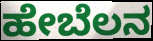
ಹೇಬೆಲನ